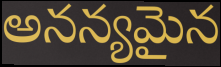
అనన్యమైన